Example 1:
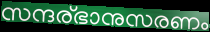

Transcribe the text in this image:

സന്ദര്ഭാനുസരണം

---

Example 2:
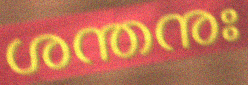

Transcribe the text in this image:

ശന്തനുഃ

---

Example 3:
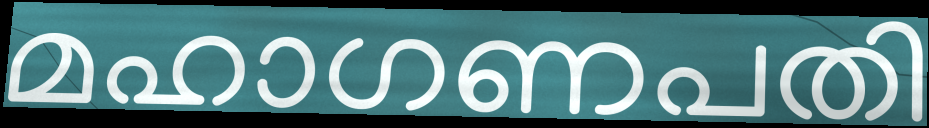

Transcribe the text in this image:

മഹാഗണപതി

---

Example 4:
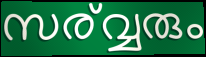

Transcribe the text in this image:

സര്വ്വരും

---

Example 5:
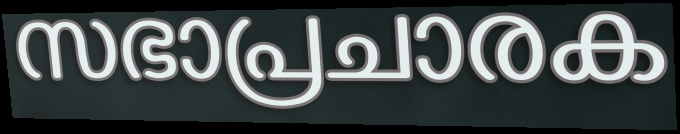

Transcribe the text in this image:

സഭാപ്രചാരക